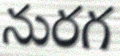
నురగ